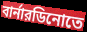
বার্নারডিনোতে